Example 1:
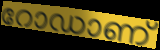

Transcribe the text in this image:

റോഡാണ്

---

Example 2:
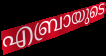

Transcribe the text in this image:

എബ്രായുടെ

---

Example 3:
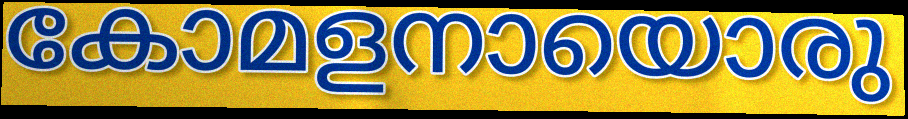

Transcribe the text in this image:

കോമളനായൊരു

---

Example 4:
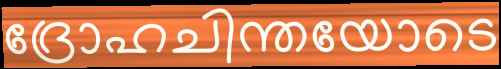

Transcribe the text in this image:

ദ്രോഹചിന്തയോടെ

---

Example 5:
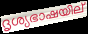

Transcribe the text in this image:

ദൃശ്യഭാഷയില്